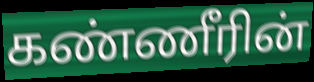
கண்ணீரின்